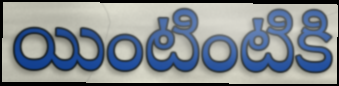
యింటింటికి